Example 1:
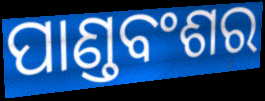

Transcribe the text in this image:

ପାଣ୍ଡବଂଶର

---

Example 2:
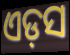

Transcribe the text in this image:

ଏଡ଼ସ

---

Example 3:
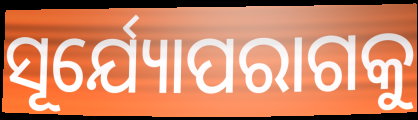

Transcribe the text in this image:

ସୂର୍ଯ୍ୟୋପରାଗକୁ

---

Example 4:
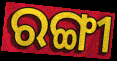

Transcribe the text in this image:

ରଙ୍ଗୀ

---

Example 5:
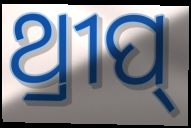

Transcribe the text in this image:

ଥ୍ରୀପ୍